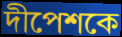
দীপেশকে